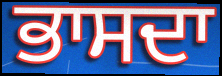
ਭਾਸਦਾ